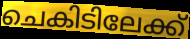
ചെകിടിലേക്ക്